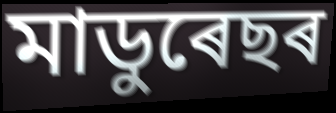
মাডুৰেছৰ